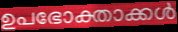
ഉപഭോക്താക്കൾ